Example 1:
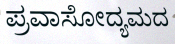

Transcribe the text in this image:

ಪ್ರವಾಸೋದ್ಯಮದ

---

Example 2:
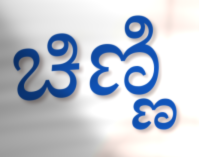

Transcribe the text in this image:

ಚಿಣ್ಣಿ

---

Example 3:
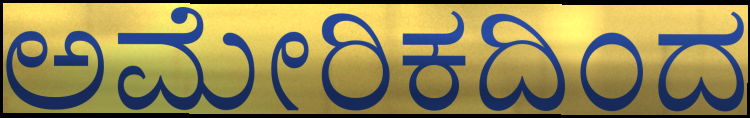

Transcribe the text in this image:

ಅಮೇರಿಕದಿಂದ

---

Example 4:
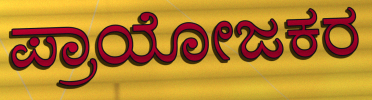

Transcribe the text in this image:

ಪ್ರಾಯೋಜಕರ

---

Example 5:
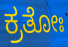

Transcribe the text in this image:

ಕ್ರತೋಃ